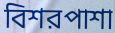
বিশরপাশা